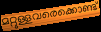
മറ്റുള്ളവരെക്കൊണ്ട്